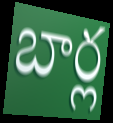
బార్ల